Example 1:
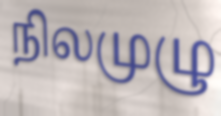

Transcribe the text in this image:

நிலமுழு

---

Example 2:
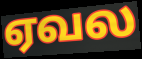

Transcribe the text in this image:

ஏவல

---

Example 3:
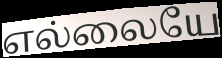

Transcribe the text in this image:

எல்லையே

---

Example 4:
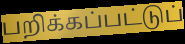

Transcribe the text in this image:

பறிக்கப்பட்டுப்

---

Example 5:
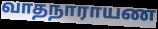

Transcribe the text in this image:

வாதநாராயண